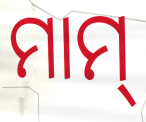
ମାମ୍